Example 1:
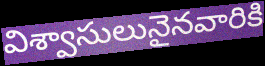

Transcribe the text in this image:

విశ్వాసులునైనవారికి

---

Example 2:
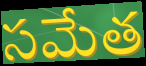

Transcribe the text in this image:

సమేత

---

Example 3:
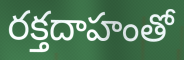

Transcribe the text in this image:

రక్తదాహంతో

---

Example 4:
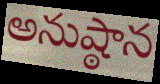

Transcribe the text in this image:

అనుష్ఠాన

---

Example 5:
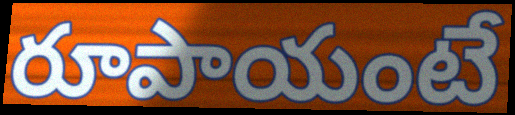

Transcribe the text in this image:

రూపాయంటే